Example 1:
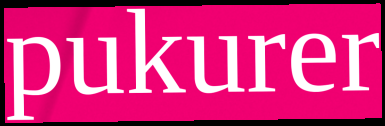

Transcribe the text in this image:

pukurer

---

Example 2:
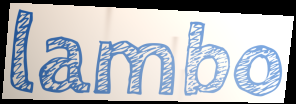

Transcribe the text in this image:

lambo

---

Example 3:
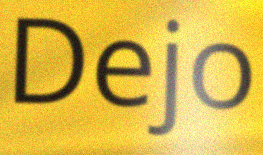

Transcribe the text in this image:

Dejo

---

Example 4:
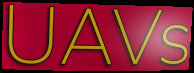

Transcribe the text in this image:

UAVs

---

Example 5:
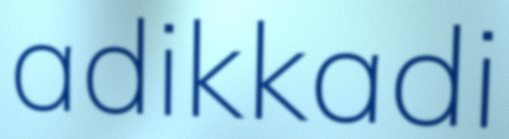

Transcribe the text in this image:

adikkadi